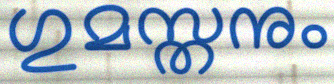
ഗുമസ്തനും